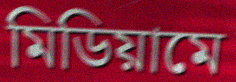
মিডিয়ামে